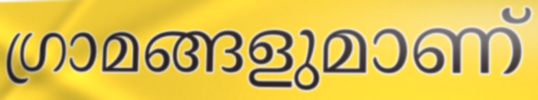
ഗ്രാമങ്ങളുമാണ്